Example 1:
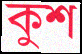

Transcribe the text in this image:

কুশ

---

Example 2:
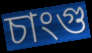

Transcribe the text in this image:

চাংগু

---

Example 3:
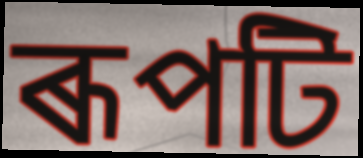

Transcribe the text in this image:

ৰূপটি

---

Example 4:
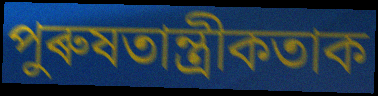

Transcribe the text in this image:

পুৰুষতান্ত্ৰীকতাক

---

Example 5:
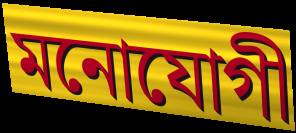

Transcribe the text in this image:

মনোযোগী